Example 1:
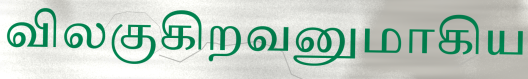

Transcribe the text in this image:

விலகுகிறவனுமாகிய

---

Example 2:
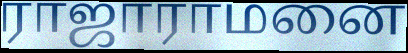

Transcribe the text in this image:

ராஜாராமனை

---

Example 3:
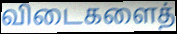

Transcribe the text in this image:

விடைகளைத்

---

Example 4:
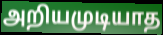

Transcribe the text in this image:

அறியமுடியாத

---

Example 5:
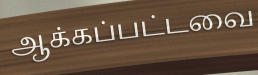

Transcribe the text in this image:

ஆக்கப்பட்டவை